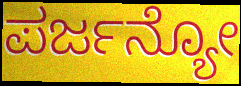
ಪರ್ಜನ್ಯೋ